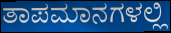
ತಾಪಮಾನಗಳಲ್ಲಿ